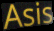
Asis